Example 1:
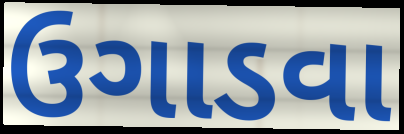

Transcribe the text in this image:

ઉગાડવા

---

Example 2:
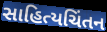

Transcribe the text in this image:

સાહિત્યચિંતન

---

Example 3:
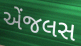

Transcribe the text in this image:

એંજલસ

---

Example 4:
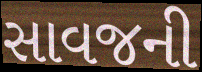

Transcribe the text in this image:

સાવજની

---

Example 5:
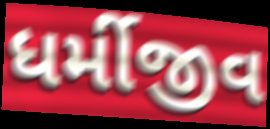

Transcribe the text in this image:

ધર્મીજીવ